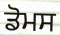
ਡੋਮਸ